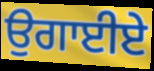
ਉਗਾਈਏ